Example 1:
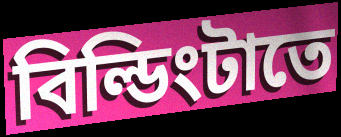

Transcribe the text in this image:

বিল্ডিংটাতে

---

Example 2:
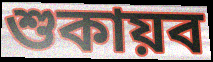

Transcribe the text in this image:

শুকায়ব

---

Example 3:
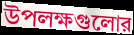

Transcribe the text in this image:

উপলক্ষগুলোর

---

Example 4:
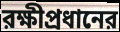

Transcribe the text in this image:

রক্ষীপ্রধানের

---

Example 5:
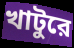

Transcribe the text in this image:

খাটুরে